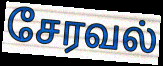
சேரவல்